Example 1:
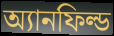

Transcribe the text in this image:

অ্যানফিল্ড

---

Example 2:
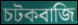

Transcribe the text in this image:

চটকবাজি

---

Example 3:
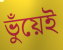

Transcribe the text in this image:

ভুঁয়েই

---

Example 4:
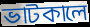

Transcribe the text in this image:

ভাটকালে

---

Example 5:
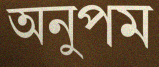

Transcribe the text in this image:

অনুপম